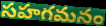
సహగమనం